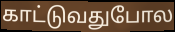
காட்டுவதுபோல